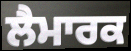
ਲੈਮਾਰਕ